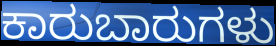
ಕಾರುಬಾರುಗಳು